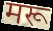
मरू